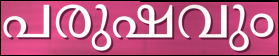
പരുഷവും